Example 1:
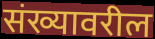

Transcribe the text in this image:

संख्यावरील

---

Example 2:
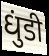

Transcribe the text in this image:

धुंडी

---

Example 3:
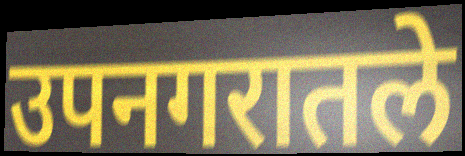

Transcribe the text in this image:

उपनगरातले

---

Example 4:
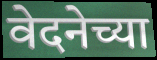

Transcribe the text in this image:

वेदनेच्या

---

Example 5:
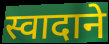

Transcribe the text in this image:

स्वादाने